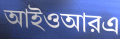
আইওআরএ